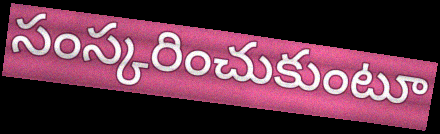
సంస్కరించుకుంటూ